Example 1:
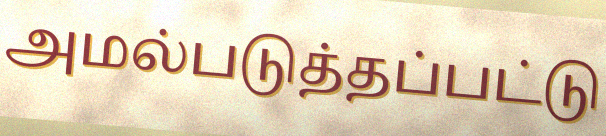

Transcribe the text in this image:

அமல்படுத்தப்பட்டு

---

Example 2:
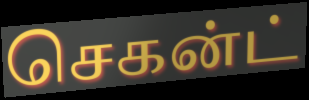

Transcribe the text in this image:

செகன்ட்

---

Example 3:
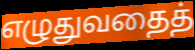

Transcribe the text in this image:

எழுதுவதைத்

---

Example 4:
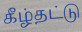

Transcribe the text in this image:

கீழ்தட்டு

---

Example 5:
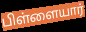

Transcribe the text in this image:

பிள்ளையார்